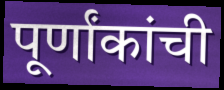
पूर्णांकांची